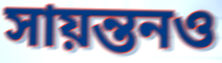
সায়ন্তনও